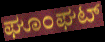
ಘೂಂಘಟ್